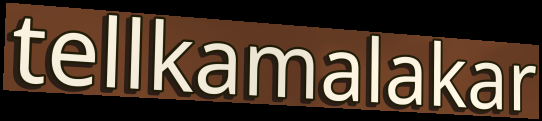
tellkamalakar